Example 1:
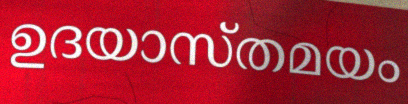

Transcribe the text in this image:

ഉദയാസ്തമയം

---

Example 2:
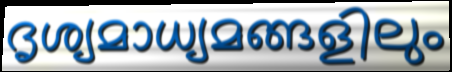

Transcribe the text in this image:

ദൃശ്യമാധ്യമങ്ങളിലും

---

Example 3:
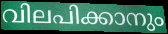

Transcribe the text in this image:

വിലപിക്കാനും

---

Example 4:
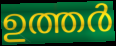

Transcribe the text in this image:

ഉത്തർ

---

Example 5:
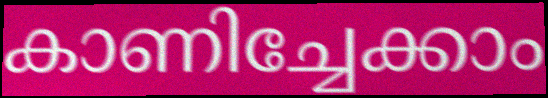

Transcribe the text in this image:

കാണിച്ചേക്കാം